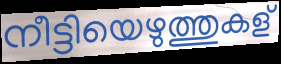
നീട്ടിയെഴുത്തുകള്